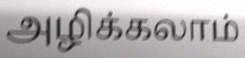
அழிக்கலாம்